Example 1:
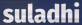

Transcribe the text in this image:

suladhi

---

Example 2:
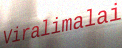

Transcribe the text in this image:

Viralimalai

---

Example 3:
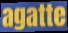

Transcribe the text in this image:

agatte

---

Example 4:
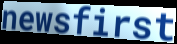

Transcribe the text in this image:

newsfirst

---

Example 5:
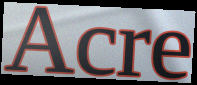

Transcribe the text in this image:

Acre